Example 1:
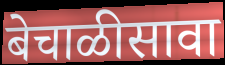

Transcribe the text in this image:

बेचाळीसावा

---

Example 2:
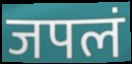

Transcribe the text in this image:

जपलं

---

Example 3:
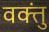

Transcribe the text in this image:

वक्तुं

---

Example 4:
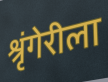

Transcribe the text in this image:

श्रृंगेरीला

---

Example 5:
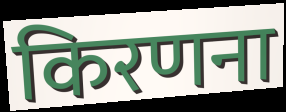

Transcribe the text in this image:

किरणना